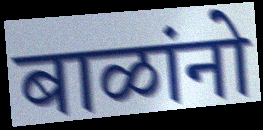
बाळांनो